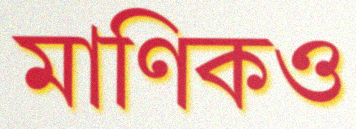
মাণিকও